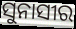
ସୁନାସୀର